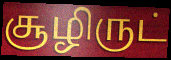
சூழிருட்